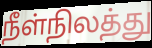
நீள்நிலத்து